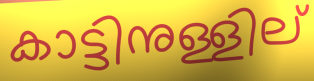
കാട്ടിനുള്ളില്